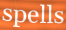
spells